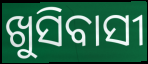
ଖୁସିବାସୀ